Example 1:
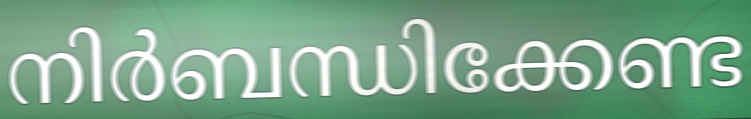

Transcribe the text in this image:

നിർബന്ധിക്കേണ്ട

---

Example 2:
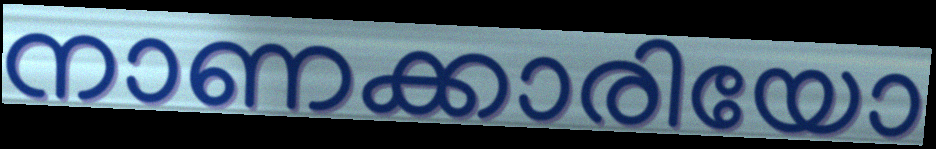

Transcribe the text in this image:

നാണക്കാരിയോ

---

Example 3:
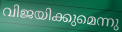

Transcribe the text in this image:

വിജയിക്കുമെന്നു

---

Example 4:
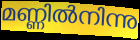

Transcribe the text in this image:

മണ്ണിൽനിന്നു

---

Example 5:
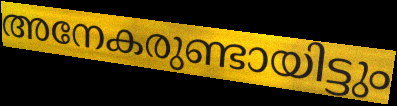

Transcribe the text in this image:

അനേകരുണ്ടായിട്ടും